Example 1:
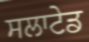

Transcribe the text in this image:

ਸਲਾਟੇਡ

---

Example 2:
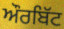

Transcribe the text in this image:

ਔਰਬਿੱਟ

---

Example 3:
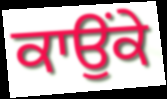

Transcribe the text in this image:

ਕਾਉਂਕੇ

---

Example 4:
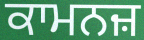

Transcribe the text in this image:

ਕਾਮਨਜ਼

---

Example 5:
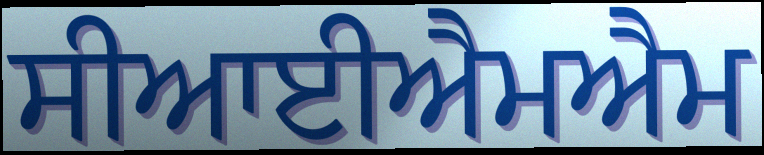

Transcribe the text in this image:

ਸੀਆਈਐਮਐਮ